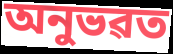
অনুভৱত